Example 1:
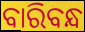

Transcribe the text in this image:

ବାରିବନ୍ଧ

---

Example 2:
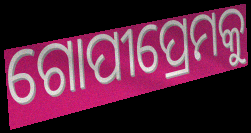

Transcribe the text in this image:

ଗୋପୀପ୍ରେମକୁ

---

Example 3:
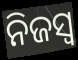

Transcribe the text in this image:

ନିଜସ୍ଵ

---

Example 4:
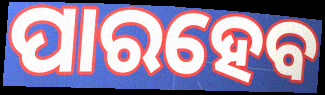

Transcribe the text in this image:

ପାରହେବ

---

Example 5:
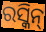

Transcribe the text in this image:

ରସ୍କିନ୍